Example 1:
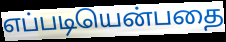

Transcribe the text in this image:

எப்படியென்பதை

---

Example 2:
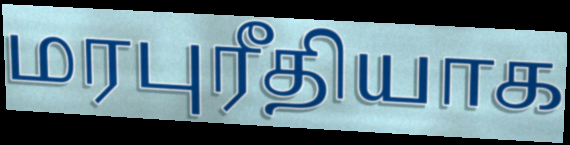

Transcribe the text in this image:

மரபுரீதியாக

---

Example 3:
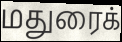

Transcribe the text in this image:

மதுரைக்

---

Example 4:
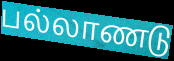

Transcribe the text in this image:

பல்லாணடு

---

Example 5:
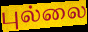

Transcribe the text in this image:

புல்லை